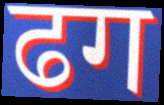
ढग